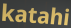
katahi